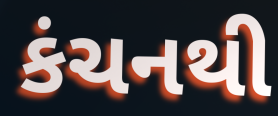
કંચનથી